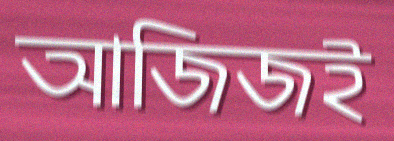
আজিজই